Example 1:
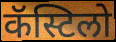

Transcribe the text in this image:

कॅस्टिलो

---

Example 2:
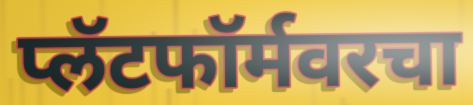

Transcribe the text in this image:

प्लॅटफॉर्मवरचा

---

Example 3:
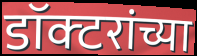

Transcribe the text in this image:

डॉक्‍टरांच्या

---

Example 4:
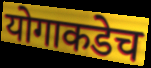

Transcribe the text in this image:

योगाकडेच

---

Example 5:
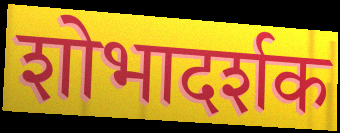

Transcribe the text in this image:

शोभादर्शक